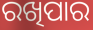
ରଖିପାର